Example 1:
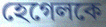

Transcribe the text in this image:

হেগেলকে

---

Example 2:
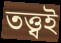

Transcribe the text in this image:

তত্ত্বই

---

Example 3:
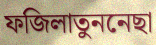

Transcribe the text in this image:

ফজিলাতুননেছা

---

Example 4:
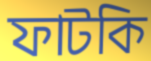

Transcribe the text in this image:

ফাটকি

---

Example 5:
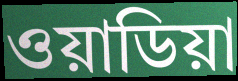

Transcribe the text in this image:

ওয়াডিয়া